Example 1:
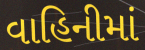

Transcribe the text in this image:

વાહિનીમાં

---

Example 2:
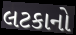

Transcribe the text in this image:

લટકાનો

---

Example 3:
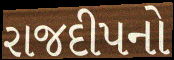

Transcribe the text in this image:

રાજદીપનો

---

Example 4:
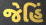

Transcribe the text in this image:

જેહિં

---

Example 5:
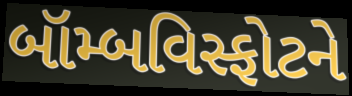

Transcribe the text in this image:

બૉમ્બવિસ્ફોટને